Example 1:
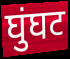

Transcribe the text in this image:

घुंघट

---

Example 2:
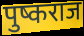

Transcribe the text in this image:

पुष्कराज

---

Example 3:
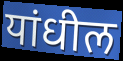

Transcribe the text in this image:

यांधील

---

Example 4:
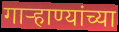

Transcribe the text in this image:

गाऱ्हाण्यांच्या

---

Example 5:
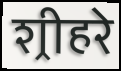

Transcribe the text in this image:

श्रीहरे